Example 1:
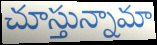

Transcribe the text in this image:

చూస్తున్నామా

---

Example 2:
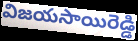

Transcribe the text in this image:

విజయసాయిరెడ్డి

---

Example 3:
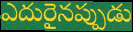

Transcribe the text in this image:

ఎదురైనప్పుడు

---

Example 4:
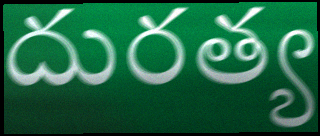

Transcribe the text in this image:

దురత్య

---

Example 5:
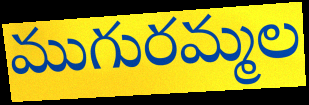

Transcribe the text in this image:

ముగురమ్మల